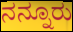
ನನ್ನೂರು